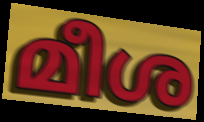
മീശ